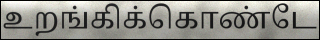
உறங்கிக்கொண்டே